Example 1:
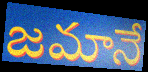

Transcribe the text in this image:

జమానే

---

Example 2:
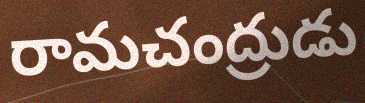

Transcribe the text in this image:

రామచంద్రుడు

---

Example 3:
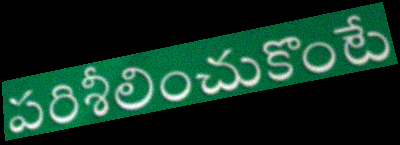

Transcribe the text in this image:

పరిశీలించుకొంటే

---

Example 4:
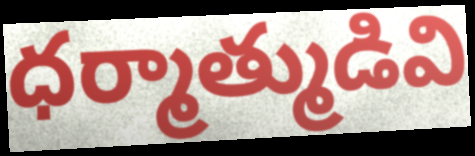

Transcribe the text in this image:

ధర్మాత్ముడివి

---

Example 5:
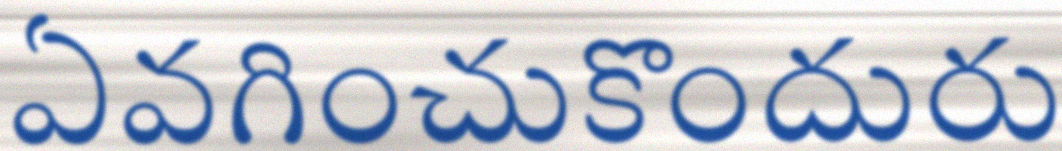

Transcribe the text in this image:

ఏవగించుకొందురు